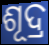
ଶୂଦ୍ର